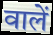
वालें